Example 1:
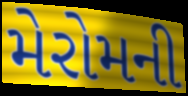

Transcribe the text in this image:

મેરોમની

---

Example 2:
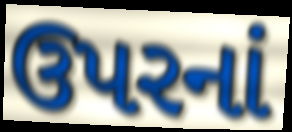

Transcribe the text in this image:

ઉપરનાં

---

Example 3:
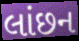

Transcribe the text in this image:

લાંછન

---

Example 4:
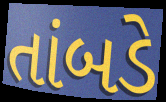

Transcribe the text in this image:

તાંબડે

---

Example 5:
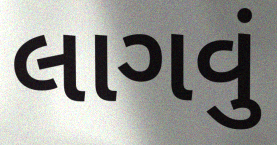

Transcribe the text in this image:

લાગવું